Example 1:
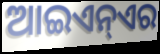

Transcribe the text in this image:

ଆଇଏନ୍ଏର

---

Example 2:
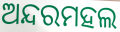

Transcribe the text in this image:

ଅନ୍ଦରମହଲ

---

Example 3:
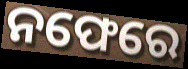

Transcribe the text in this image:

ନଫେରେ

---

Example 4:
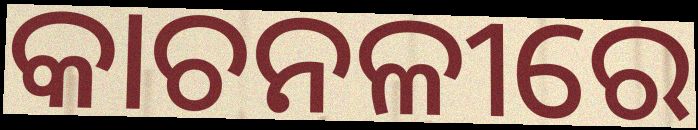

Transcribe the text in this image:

କାଚନଳୀରେ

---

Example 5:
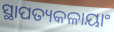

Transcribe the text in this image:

ସ୍ଥାପତ୍ୟକଳାୟାଂ